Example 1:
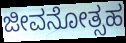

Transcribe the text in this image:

ಜೀವನೋತ್ಸಹ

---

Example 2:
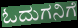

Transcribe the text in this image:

ಓದುಗನಿಗೆ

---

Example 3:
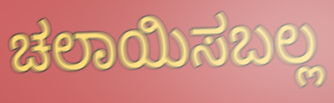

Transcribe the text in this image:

ಚಲಾಯಿಸಬಲ್ಲ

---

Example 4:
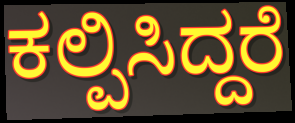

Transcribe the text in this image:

ಕಲ್ಪಿಸಿದ್ದರೆ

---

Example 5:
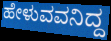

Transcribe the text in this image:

ಹೇಳುವವನಿದ್ದ